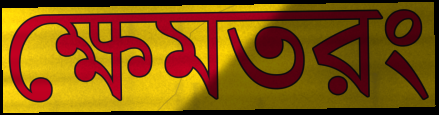
ক্ষেমতরং